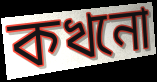
কখনো